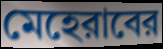
মেহেরাবের